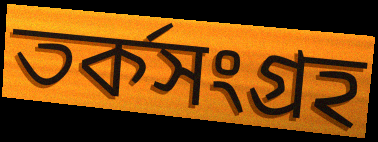
তর্কসংগ্রহ